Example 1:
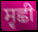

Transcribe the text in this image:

ਸ੍ਵਛੀ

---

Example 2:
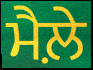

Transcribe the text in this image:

ਮੈਲ਼ੇ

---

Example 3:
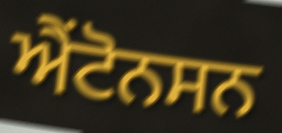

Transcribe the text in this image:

ਐਂਟੋਨਸਨ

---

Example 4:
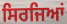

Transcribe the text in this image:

ਸਿਰਜਿਆਂ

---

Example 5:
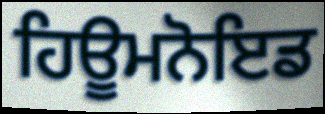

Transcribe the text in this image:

ਹਿਊਮਨੋਇਡ